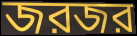
জরজর